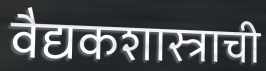
वैद्यकशास्त्राची